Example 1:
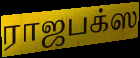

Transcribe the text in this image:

ராஜபக்ஸ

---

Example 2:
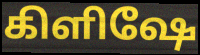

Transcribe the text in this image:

கிளிஷே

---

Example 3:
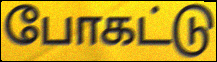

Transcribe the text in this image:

போகட்டு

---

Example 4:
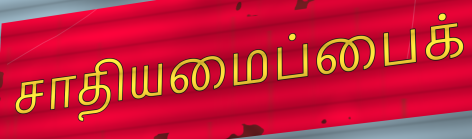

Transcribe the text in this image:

சாதியமைப்பைக்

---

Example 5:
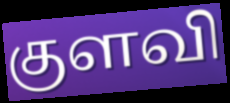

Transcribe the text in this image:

குளவி